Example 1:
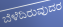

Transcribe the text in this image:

ಬೆಳೆದಿರುವುದರ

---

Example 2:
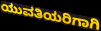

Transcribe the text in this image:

ಯುವತಿಯರಿಗಾಗಿ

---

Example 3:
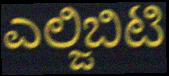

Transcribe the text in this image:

ಎಲ್ಜಿಬಿಟಿ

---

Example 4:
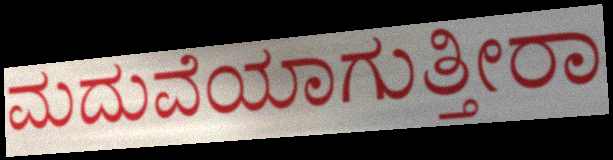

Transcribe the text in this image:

ಮದುವೆಯಾಗುತ್ತೀರಾ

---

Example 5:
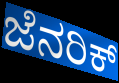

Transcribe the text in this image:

ಜೆನರಿಕ್